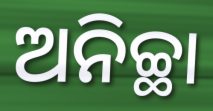
ଅନିଚ୍ଛା